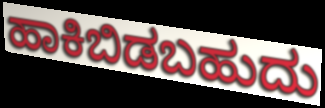
ಹಾಕಿಬಿಡಬಹುದು